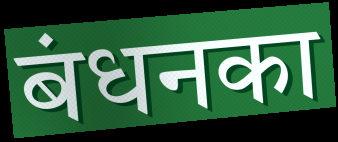
बंधनका